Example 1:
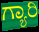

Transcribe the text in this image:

ಗ್ಯಾರಿ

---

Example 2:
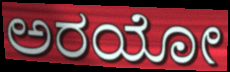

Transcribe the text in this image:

ಅರಯೋ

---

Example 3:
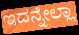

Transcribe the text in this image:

ಇದನ್ನೇಲ್ಲಾ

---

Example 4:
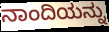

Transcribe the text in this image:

ನಾಂದಿಯನ್ನು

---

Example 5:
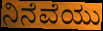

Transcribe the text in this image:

ನಿನೆವೆಯು